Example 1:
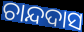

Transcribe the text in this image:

ଚାନ୍ଦଦାସ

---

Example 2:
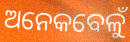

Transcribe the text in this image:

ଅନେକବେଳୁଁ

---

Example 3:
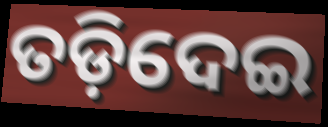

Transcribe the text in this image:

ତଡ଼ିଦେଇ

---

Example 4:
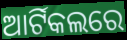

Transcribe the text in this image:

ଆର୍ଟିକଲରେ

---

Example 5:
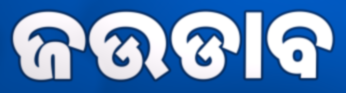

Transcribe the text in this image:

ଜଉଡାବ